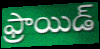
ఫ్రాయిడ్